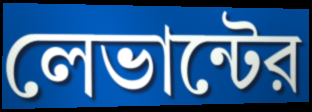
লেভান্টের